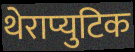
थेराप्युटिक